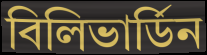
বিলিভার্ডিন